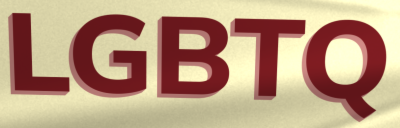
LGBTQ